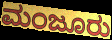
ಮಂಜೂರು